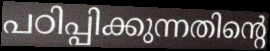
പഠിപ്പിക്കുന്നതിന്റെ